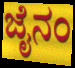
ಜೈನಂ